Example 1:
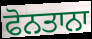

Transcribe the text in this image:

ਫੋਨਤਾਨਾ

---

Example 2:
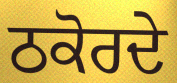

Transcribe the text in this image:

ਠਕੋਰਦੇ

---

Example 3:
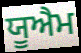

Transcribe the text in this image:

ਯੂਐਮ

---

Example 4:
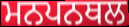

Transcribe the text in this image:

ਮਨਪਨਥਲ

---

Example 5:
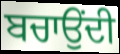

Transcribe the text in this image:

ਬਚਾਉਂਦੀ